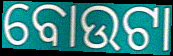
ବୋଉଟା